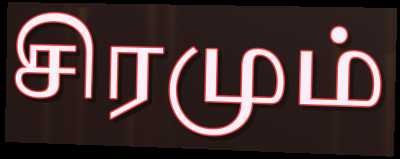
சிரமும்